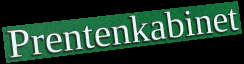
Prentenkabinet